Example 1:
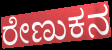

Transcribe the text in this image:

ರೇಣುಕನ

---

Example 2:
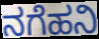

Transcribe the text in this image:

ನಗೆಹನಿ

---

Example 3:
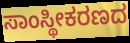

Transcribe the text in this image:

ಸಾಂಸ್ಥೀಕರಣದ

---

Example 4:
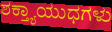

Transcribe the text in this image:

ಶಕ್ತ್ಯಾಯುಧಗಳು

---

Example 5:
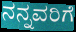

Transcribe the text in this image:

ನನ್ನವರಿಗೆ